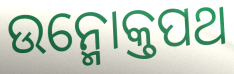
ଉନ୍ମୋକ୍ତପଥ